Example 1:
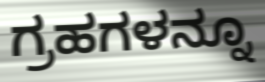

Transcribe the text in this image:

ಗ್ರಹಗಳನ್ನೂ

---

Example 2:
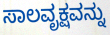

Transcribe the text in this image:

ಸಾಲವೃಕ್ಷವನ್ನು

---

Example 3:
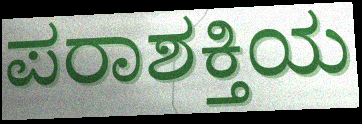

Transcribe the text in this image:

ಪರಾಶಕ್ತಿಯ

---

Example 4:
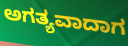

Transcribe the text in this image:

ಅಗತ್ಯವಾದಾಗ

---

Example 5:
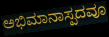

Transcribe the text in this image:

ಅಭಿಮಾನಾಸ್ಪದವೂ